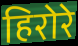
हिरोरे